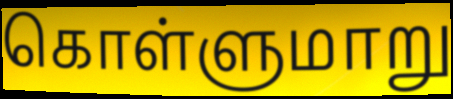
கொள்ளுமாறு